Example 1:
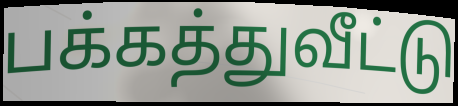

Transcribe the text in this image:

பக்கத்துவீட்டு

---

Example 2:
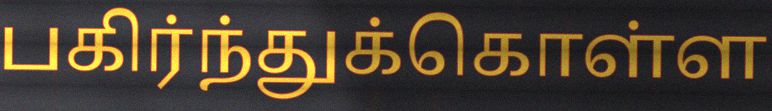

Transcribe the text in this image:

பகிர்ந்துக்கொள்ள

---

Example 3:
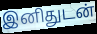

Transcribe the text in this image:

இனிதுடன்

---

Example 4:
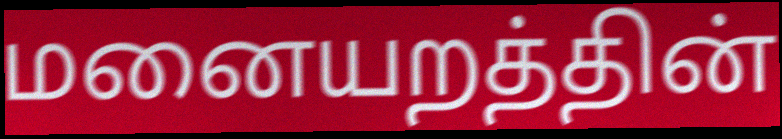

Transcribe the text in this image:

மனையறத்தின்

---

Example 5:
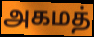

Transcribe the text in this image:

அகமத்